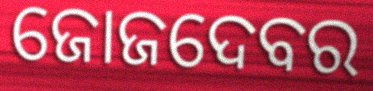
ଜୋଜଦେବର